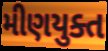
મીણયુક્ત